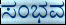
ಸಂಭವ